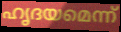
ഹൃദയമെന്ന്